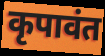
कृपावंत